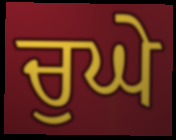
ਚੁਘੇ